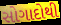
સોગાદોથી